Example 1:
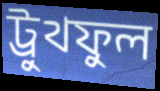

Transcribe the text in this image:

ট্রুথফুল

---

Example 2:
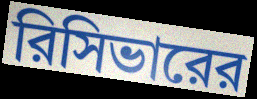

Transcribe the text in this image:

রিসিভারের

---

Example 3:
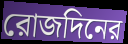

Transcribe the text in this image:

রোজদিনের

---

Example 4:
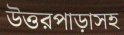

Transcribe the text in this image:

উত্তরপাড়াসহ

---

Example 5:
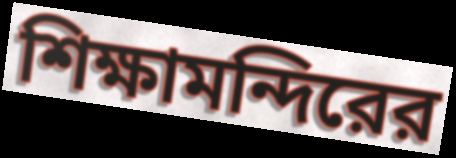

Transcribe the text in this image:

শিক্ষামন্দিরের